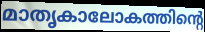
മാതൃകാലോകത്തിന്റെ